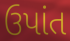
ઉપાંત